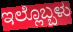
ಇಲ್ಲೊಬ್ಬಳು